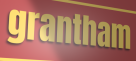
grantham